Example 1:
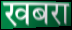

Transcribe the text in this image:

खबरा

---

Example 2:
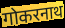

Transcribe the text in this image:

गोकरनाथ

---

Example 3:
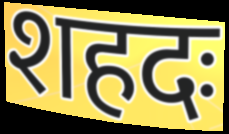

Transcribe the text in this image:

शहदः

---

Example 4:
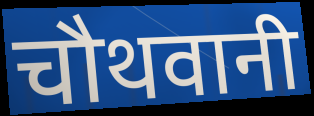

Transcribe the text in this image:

चौथवानी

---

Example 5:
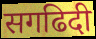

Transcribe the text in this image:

सगढिदी